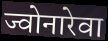
ज्वोनारेवा